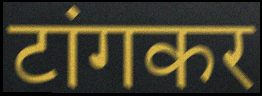
टांगकर